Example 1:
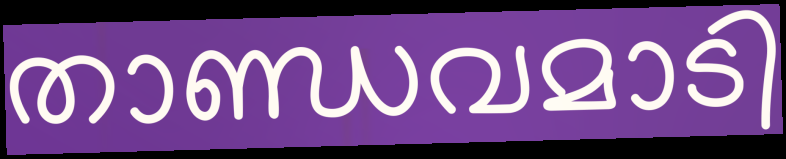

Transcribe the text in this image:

താണ്ഡവമാടി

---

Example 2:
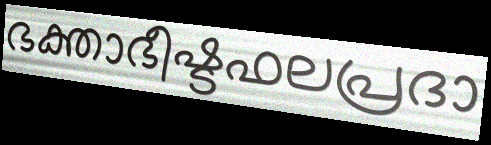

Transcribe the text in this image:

ഭക്താഭീഷ്ടഫലപ്രദാ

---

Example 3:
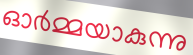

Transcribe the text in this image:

ഓർമ്മയാകുന്നു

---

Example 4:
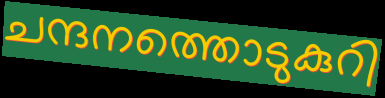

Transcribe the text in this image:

ചന്ദനത്തൊടുകുറി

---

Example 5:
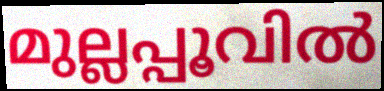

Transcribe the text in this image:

മുല്ലപ്പൂവിൽ